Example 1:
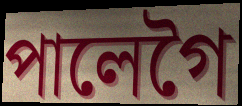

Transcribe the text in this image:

পালেগৈ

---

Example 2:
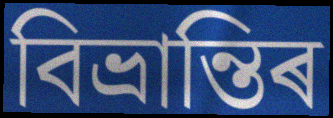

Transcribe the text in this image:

বিভ্ৰান্তিৰ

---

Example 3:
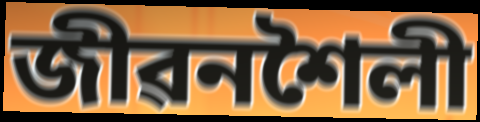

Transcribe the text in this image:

জীৱনশৈলী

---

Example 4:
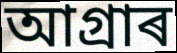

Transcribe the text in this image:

আগ্ৰাৰ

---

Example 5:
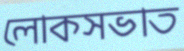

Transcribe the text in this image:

লোকসভাত